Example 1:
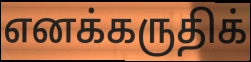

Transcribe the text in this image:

எனக்கருதிக்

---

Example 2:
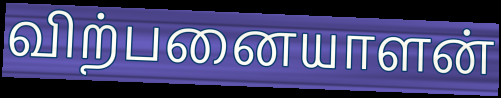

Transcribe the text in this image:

விற்பனையாளன்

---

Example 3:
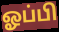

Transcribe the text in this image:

ஓப்பி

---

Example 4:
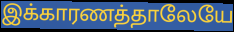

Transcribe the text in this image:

இக்காரணத்தாலேயே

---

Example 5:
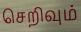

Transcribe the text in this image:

செறிவும்